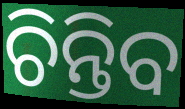
ଚିନ୍ତିବ